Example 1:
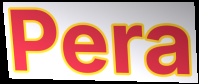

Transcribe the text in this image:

Pera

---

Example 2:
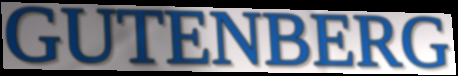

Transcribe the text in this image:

GUTENBERG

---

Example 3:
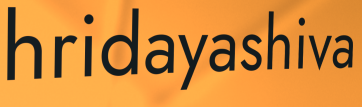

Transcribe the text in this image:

hridayashiva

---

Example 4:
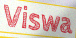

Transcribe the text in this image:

Viswa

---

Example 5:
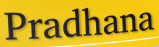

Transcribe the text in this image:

Pradhana